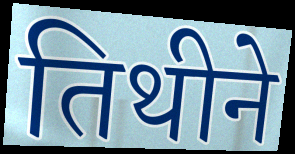
तिथीने